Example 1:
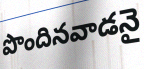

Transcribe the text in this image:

పొందినవాడనై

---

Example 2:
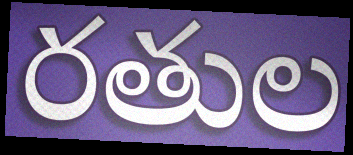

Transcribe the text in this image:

రతుల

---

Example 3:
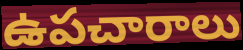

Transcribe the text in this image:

ఉపచారాలు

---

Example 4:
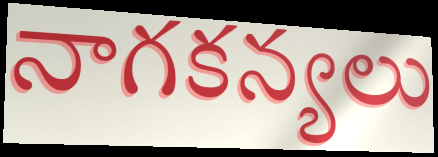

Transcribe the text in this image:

నాగకన్యలు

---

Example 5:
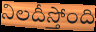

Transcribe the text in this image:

నిలదీస్తోంది